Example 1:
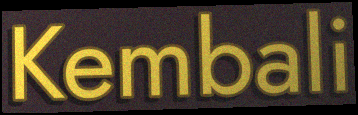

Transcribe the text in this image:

Kembali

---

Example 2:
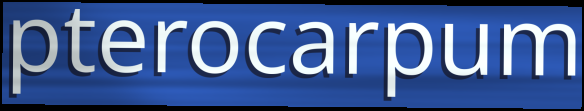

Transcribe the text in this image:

pterocarpum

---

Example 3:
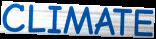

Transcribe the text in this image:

CLIMATE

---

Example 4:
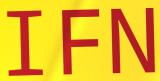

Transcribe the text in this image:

IFN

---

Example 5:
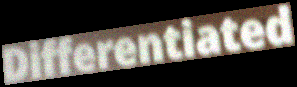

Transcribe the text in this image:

Differentiated